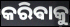
କରିଵାକୁ